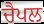
ਚੈਪਲ